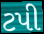
ટપી